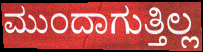
ಮುಂದಾಗುತ್ತಿಲ್ಲ